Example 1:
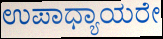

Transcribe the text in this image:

ಉಪಾಧ್ಯಾಯರೇ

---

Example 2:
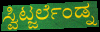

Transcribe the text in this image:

ಸ್ವಿಟ್ಜರ್ಲೆಂಡ್ನ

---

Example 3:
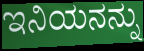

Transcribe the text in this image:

ಇನಿಯನನ್ನು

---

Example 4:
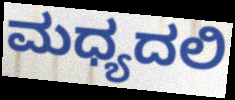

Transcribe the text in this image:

ಮಧ್ಯದಲಿ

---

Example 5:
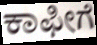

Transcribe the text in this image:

ಕಾಫೀಗೆ